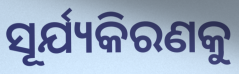
ସୂର୍ଯ୍ୟକିରଣକୁ